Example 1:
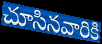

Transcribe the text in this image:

చూసినవారికి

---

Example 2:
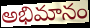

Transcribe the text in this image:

అభిమానం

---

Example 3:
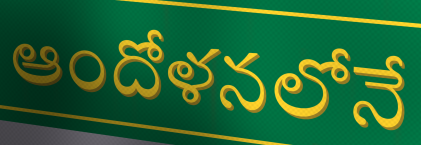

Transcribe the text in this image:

ఆందోళనలోనే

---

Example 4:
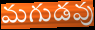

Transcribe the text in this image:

మగుడవు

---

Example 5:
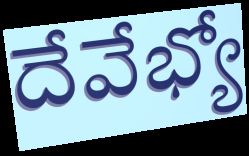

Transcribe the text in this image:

దేవేభ్యో